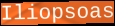
Iliopsoas